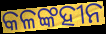
କଳଙ୍କହୀନ